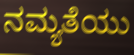
ನಮ್ಯತೆಯು